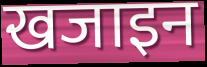
खजाइन